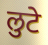
लुटे